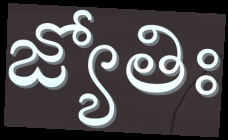
జ్యోతిః